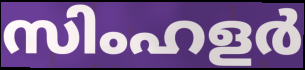
സിംഹളർ